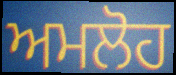
ਅਮਲੋਹ